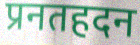
प्रनतहदन